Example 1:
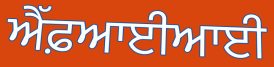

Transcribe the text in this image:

ਐੱਫ਼ਆਈਆਈ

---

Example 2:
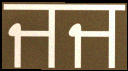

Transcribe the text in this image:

ਜਜ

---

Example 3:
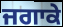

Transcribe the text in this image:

ਜਗਾਕੇ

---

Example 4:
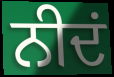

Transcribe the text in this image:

ਨੀਦਂ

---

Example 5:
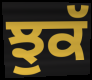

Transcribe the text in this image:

ਝੁਕੱ